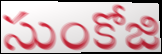
సుంకోజి